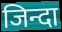
जिन्दा